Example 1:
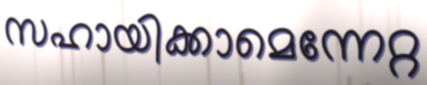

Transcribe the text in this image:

സഹായിക്കാമെന്നേറ്റ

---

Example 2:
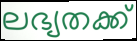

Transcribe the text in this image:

ലഭ്യതക്ക്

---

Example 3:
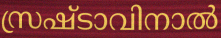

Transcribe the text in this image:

സ്രഷ്ടാവിനാൽ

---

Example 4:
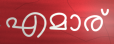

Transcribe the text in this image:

എമാര്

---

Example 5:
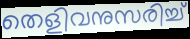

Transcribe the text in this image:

തെളിവനുസരിച്ച്